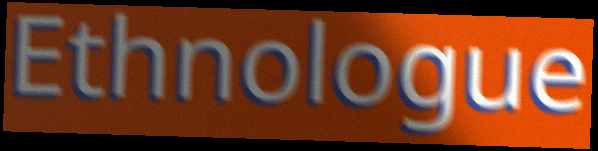
Ethnologue